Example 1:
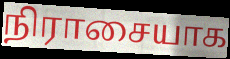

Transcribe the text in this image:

நிராசையாக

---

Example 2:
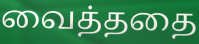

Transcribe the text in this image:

வைத்ததை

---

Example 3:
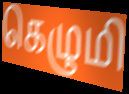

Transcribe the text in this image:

கெழுமி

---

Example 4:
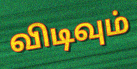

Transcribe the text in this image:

விடிவும்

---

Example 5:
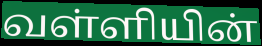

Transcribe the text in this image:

வள்ளியின்